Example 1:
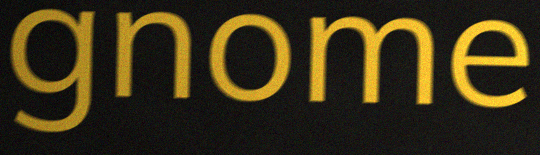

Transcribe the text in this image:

gnome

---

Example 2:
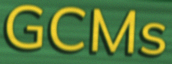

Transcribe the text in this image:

GCMs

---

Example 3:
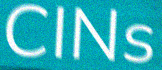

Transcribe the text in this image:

CINs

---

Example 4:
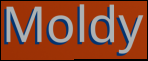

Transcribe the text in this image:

Moldy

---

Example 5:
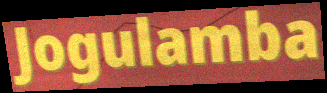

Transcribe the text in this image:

Jogulamba